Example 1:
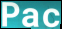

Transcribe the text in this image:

Pac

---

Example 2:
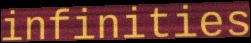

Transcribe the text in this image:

infinities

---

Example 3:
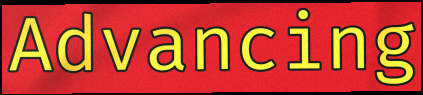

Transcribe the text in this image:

Advancing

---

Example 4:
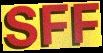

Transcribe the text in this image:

SFF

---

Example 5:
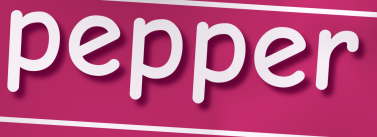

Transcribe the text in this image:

pepper